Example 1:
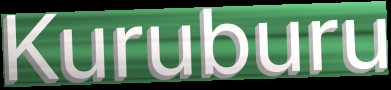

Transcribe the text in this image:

Kuruburu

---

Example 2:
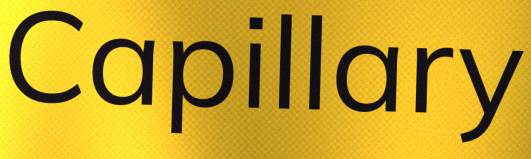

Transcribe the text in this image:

Capillary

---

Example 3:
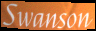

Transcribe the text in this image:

Swanson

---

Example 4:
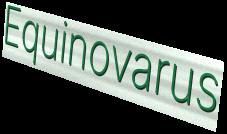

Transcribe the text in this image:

Equinovarus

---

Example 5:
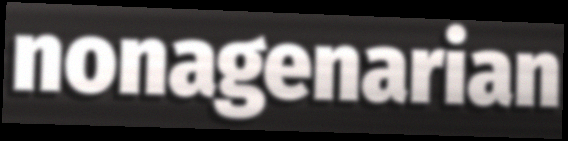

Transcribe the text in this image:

nonagenarian